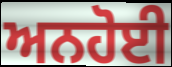
ਅਨਹੋਈ